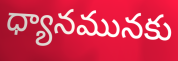
ధ్యానమునకు